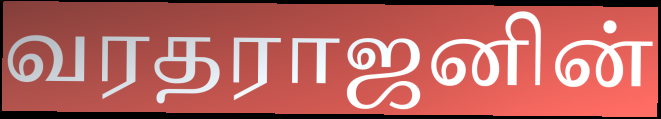
வரதராஜனின்